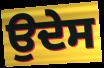
ਉਦੇਸ